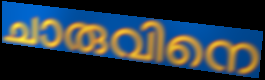
ചാരുവിനെ